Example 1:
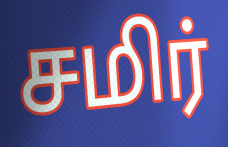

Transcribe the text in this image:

சமிர்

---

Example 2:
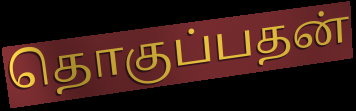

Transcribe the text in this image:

தொகுப்பதன்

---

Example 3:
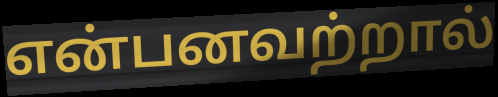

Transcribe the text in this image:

என்பனவற்றால்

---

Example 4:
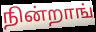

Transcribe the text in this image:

நின்றாங்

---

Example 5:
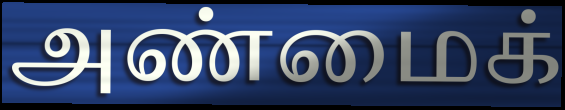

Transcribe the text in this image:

அண்மைக்